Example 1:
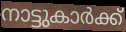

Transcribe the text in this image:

നാട്ടുകാർക്ക്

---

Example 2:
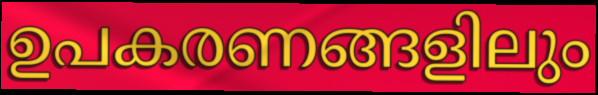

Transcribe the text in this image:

ഉപകരണങ്ങളിലും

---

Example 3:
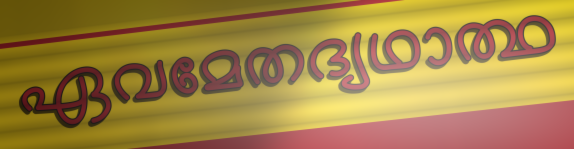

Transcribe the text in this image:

ഏവമേതദ്യഥാത്ഥ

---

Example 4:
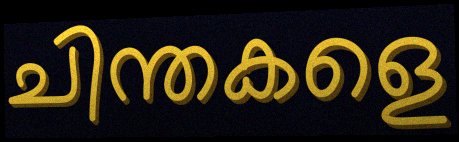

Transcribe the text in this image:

ചിന്തകളെ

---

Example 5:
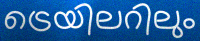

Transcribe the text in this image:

ട്രെയിലറിലും